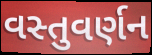
વસ્તુવર્ણન